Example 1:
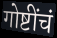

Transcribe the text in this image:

गोष्टींचं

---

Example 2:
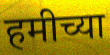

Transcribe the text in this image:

हमीच्या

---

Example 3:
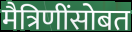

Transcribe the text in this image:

मैत्रिणींसोबत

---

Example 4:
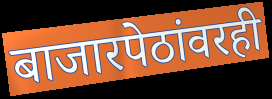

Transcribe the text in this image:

बाजारपेठांवरही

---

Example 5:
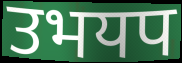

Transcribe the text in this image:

उभयप